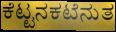
ಕೆಟ್ಟನಕಟೆನುತ